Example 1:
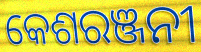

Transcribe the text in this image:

କେଶରଞ୍ଜନୀ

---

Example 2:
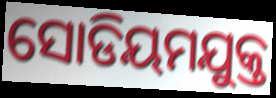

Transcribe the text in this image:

ସୋଡିୟମଯୁକ୍ତ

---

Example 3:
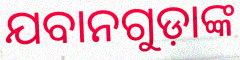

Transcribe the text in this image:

ଯବାନଗୁଡ଼ାଙ୍କ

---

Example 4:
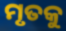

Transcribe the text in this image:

ମୃତକୁ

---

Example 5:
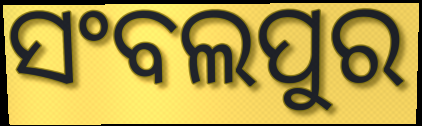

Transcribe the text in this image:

ସଂବଲପୁର